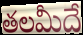
తలమీదే